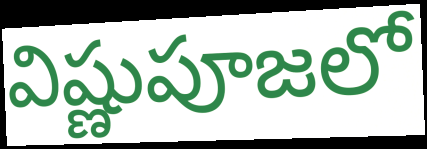
విష్ణుపూజలో